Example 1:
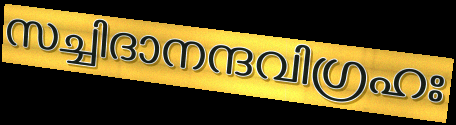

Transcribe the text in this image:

സച്ചിദാനന്ദവിഗ്രഹഃ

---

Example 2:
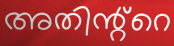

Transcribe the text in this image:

അതിന്റ്റെ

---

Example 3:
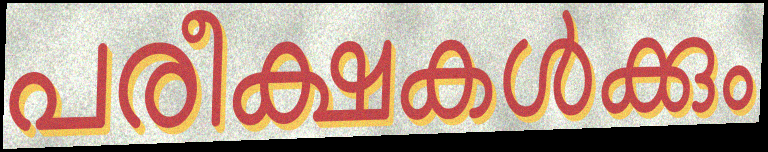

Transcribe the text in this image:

പരീക്ഷകൾക്കും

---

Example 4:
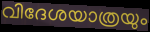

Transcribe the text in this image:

വിദേശയാത്രയും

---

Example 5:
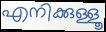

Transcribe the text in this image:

എനിക്കുള്ളൂ